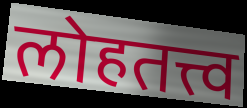
लोहतत्त्व